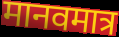
मानवमात्र